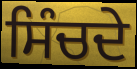
ਸਿੰਚਦੇ